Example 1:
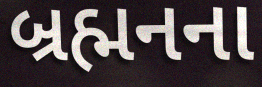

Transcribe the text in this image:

બ્રહ્મનના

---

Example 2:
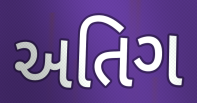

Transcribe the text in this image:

અતિગ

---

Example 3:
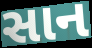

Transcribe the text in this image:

સાન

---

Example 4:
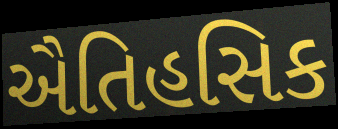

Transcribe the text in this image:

ઐતિહસિક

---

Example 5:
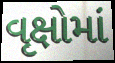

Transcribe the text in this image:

વૃક્ષોમાં